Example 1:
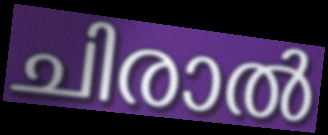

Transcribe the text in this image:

ചിരാൽ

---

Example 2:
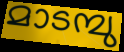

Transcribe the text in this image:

മാടമ്പു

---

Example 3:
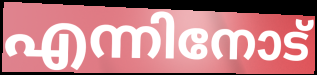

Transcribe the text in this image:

എന്നിനോട്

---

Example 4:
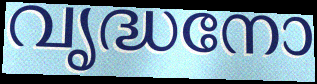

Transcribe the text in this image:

വൃദ്ധനോ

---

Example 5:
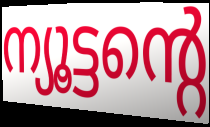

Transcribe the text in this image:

ന്യൂട്ടന്റെ